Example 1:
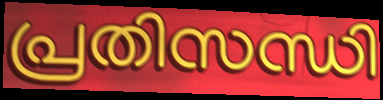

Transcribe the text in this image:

പ്രതിസന്ധി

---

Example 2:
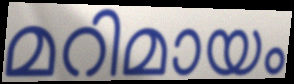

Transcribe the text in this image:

മറിമായം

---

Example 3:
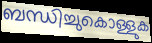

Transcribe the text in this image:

ബന്ധിച്ചുകൊള്ളുക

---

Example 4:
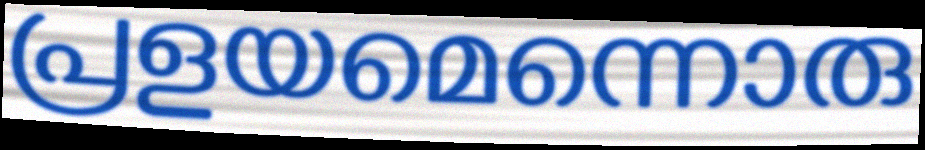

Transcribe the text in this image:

പ്രളയമെന്നൊരു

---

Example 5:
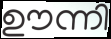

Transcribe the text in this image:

ഊന്നി